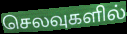
செலவுகளில்